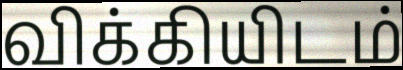
விக்கியிடம்